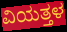
ವಿಯತ್ತಳ